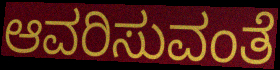
ಆವರಿಸುವಂತೆ